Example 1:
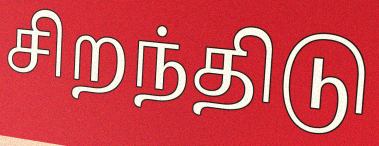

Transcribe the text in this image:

சிறந்திடு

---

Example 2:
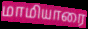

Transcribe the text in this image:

மாமியாரை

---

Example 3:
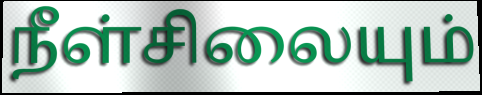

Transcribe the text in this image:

நீள்சிலையும்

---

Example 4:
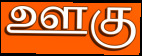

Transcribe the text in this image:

ஊகு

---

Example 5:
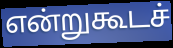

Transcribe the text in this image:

என்றுகூடச்